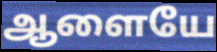
ஆளையே